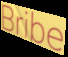
Bribe